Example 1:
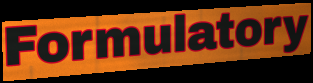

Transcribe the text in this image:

Formulatory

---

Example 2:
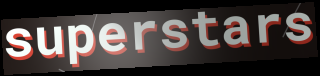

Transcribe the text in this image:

superstars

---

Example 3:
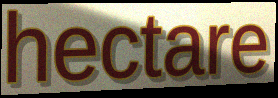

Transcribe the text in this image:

hectare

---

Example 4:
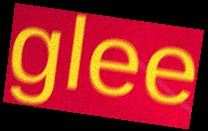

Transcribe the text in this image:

glee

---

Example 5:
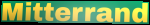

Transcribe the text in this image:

Mitterrand